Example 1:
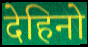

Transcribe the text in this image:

देहिनो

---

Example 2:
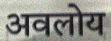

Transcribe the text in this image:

अवलोय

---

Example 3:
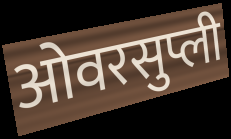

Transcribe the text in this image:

ओवरसुप्ली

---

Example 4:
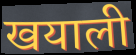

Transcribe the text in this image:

खयाली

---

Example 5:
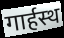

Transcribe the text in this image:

गार्हस्थ